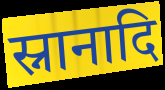
स्नानादि